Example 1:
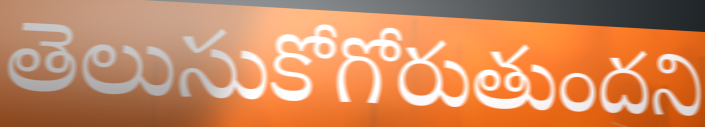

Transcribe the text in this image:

తెలుసుకోగోరుతుందని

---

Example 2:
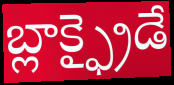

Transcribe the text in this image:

బ్లాక్ఫ్రైడే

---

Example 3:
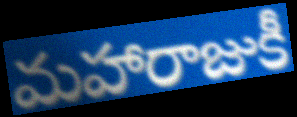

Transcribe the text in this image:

మహారాజుకీ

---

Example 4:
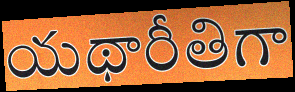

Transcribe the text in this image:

యథారీతిగా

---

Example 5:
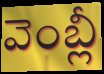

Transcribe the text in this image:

వెంబ్లీ